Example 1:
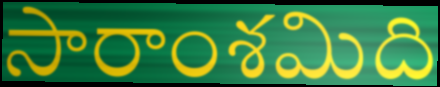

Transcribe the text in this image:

సారాంశమిది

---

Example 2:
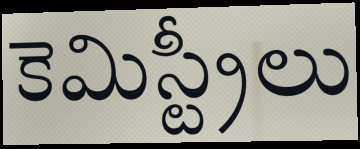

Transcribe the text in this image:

కెమిస్ట్రీలు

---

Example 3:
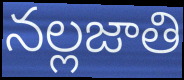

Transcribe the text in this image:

నల్లజాతి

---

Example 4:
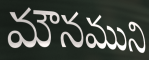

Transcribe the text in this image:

మౌనముని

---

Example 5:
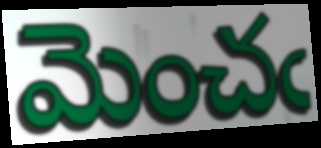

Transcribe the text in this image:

మెంచఁ